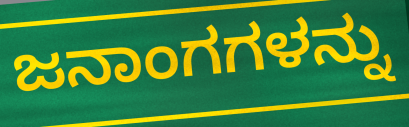
ಜನಾಂಗಗಳನ್ನು